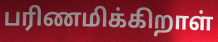
பரிணமிக்கிறாள்